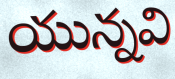
యున్నవి